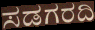
ಸಡಗರದಿ